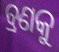
ବ୍ରଣକୁ